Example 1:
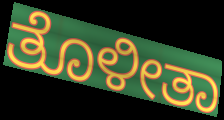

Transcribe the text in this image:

ತೊಳೀತಾ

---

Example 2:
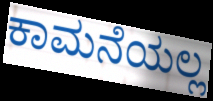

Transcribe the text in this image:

ಕಾಮನೆಯಲ್ಲ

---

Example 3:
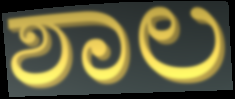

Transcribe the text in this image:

ಶಾಲ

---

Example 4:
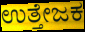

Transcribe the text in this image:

ಉತ್ತೇಜಕ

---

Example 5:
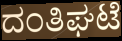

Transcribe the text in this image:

ದಂತಿಘಟೆ